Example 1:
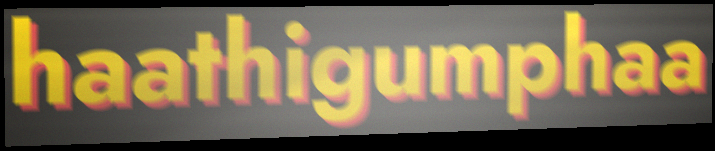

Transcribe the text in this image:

haathigumphaa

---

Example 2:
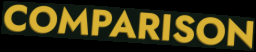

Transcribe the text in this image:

COMPARISON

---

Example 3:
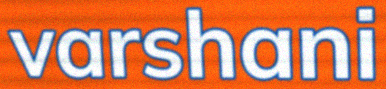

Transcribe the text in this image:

varshani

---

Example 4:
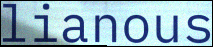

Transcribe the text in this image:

lianous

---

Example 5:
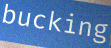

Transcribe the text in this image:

bucking